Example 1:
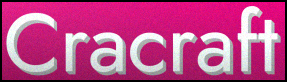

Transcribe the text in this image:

Cracraft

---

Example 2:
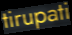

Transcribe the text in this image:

tirupati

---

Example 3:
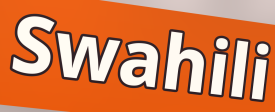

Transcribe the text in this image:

Swahili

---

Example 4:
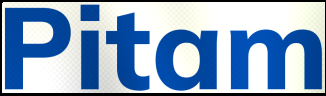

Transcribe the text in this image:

Pitam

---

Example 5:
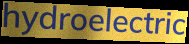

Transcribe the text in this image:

hydroelectric